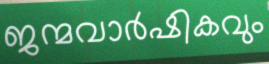
ജന്മവാർഷികവും